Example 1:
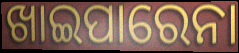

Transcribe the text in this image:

ଖାଇପାରେନା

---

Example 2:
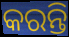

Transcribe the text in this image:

କରନ୍ତି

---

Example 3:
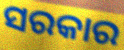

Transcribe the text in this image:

ସରକାର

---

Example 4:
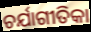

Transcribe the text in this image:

ଚର୍ଯାଗୀତିକା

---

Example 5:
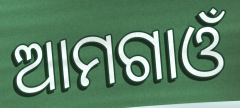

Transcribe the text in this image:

ଆମଗାଓଁ